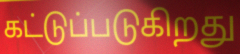
கட்டுப்படுகிறது